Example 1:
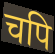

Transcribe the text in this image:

चपि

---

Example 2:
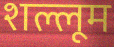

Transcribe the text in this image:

शल्लूम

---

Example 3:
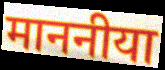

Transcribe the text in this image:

माननीया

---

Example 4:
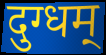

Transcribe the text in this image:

दुग्धम्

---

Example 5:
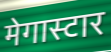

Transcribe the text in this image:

मेगास्टार